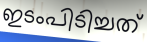
ഇടംപിടിച്ചത്